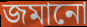
জমানো